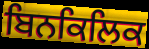
ਬਿਨਕਿਲਿਕ